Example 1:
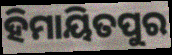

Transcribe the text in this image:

ହିମାୟିତପୁର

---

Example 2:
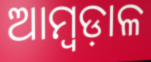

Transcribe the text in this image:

ଆମ୍ବଡ଼ାଳ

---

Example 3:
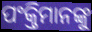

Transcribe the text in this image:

ପଂକ୍ତିମାନଙ୍କୁ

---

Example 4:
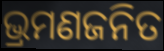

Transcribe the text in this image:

ଭ୍ରମଣଜନିତ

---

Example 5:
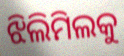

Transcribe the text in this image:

ଝିଲିମିଲକୁ